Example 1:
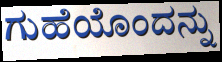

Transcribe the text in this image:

ಗುಹೆಯೊಂದನ್ನು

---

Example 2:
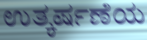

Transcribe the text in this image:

ಉತ್ಕರ್ಷಣೆಯ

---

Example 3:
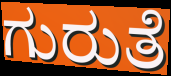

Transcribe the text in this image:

ಗುರುತೆ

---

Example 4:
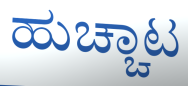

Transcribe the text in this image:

ಹುಚ್ಚಾಟ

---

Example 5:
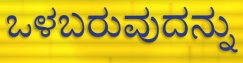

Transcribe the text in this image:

ಒಳಬರುವುದನ್ನು